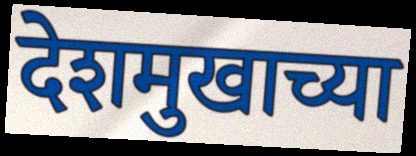
देशमुखाच्या